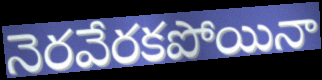
నెరవేరకపోయినా